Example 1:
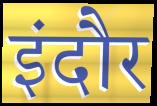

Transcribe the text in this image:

इंदौर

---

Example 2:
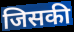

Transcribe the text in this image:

जिसकी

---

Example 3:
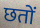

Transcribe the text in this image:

छतों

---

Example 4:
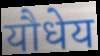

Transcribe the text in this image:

यौधेय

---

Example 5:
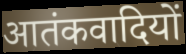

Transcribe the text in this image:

आतंकवादियों